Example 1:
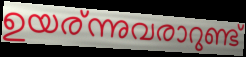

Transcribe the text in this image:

ഉയര്ന്നുവരാറുണ്ട്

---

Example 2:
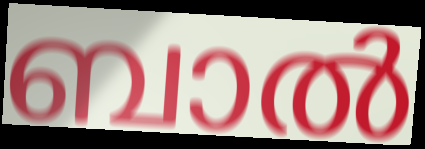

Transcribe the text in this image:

ബാൽ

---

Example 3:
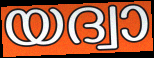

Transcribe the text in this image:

യദ്വാ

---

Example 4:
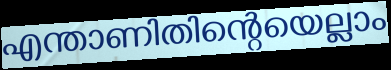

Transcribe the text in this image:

എന്താണിതിന്റെയെല്ലാം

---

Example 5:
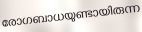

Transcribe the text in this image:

രോഗബാധയുണ്ടായിരുന്ന